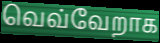
வெவ்வேறாக